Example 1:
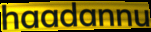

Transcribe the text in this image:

haadannu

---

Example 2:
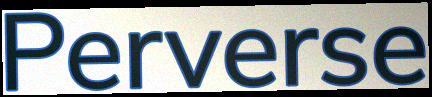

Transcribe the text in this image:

Perverse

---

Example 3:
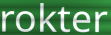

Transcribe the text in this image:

rokter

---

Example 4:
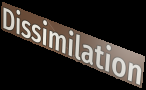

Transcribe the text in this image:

Dissimilation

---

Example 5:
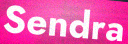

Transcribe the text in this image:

Sendra